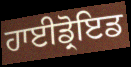
ਹਾਈਡ੍ਰੋਇਡ